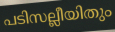
പടിസല്ലീയിതും